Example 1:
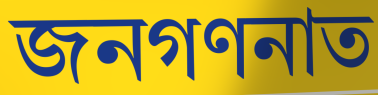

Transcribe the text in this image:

জনগণনাত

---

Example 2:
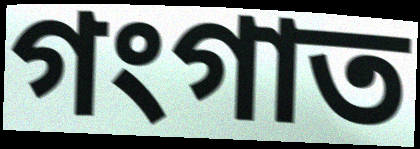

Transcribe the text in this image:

গংগাত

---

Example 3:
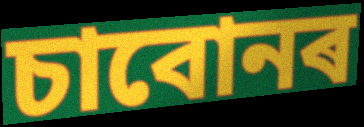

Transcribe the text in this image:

চাবোনৰ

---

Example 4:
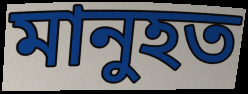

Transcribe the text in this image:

মানুহত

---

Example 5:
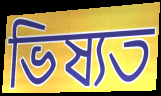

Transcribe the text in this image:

ভিষ্যত